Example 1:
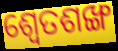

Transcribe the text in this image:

ଶ୍ୱେତଶଙ୍ଖ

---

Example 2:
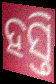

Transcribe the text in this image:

ହସ୍ତି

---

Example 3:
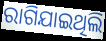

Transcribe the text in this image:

ରାଗିଯାଇଥିଲି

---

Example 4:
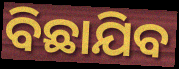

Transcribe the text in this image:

ବିଛାଯିବ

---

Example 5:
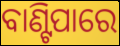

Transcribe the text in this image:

ବାଣ୍ଟିପାରେ